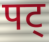
पट्